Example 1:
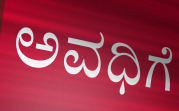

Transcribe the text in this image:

ಅವಧಿಗೆ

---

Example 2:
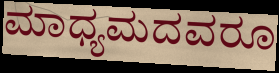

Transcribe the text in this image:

ಮಾಧ್ಯಮದವರೂ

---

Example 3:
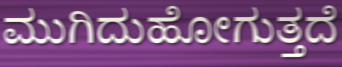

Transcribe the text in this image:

ಮುಗಿದುಹೋಗುತ್ತದೆ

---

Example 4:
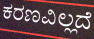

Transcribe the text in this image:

ಕರಣವಿಲ್ಲದೆ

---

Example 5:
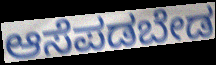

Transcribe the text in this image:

ಆಸೆಪಡಬೇಡ